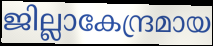
ജില്ലാകേന്ദ്രമായ